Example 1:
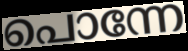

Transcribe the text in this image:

പൊന്നേ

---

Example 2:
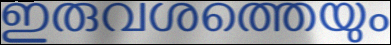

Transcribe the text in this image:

ഇരുവശത്തെയും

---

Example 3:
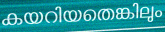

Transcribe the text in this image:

കയറിയതെങ്കിലും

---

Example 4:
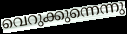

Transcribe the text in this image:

വെറുക്കുന്നെന്നു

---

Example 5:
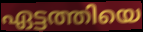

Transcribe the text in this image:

ഏട്ടത്തിയെ